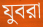
যুবরা